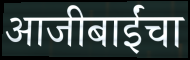
आजीबाईंचा